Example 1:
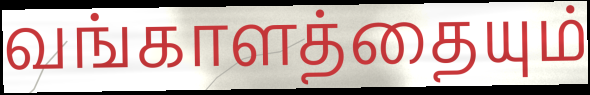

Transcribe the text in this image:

வங்காளத்தையும்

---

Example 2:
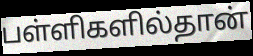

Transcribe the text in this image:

பள்ளிகளில்தான்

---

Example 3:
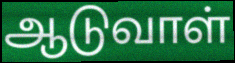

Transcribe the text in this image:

ஆடுவாள்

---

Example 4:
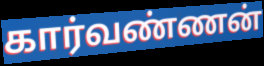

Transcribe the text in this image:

கார்வண்ணன்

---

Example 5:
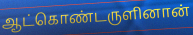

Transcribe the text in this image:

ஆட்கொண்டருளினான்